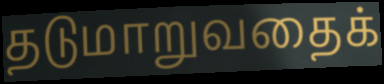
தடுமாறுவதைக்